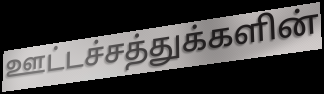
ஊட்டச்சத்துக்களின்